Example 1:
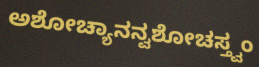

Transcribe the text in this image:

ಅಶೋಚ್ಯಾನನ್ವಶೋಚಸ್ತ್ವಂ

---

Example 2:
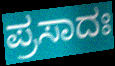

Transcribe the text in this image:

ಪ್ರಸಾದಃ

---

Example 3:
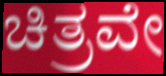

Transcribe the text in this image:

ಚಿತ್ರವೇ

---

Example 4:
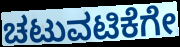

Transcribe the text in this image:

ಚಟುವಟಿಕೆಗೇ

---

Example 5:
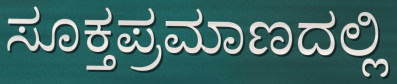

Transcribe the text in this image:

ಸೂಕ್ತಪ್ರಮಾಣದಲ್ಲಿ